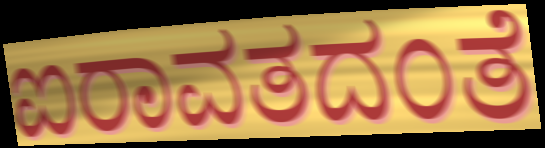
ಐರಾವತದಂತೆ